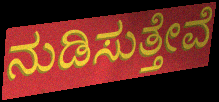
ನುಡಿಸುತ್ತೇವೆ